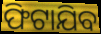
ଫିଟାଯିବ